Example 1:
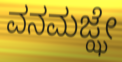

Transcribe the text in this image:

ವನಮಜ್ಝೇ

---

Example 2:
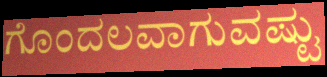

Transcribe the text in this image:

ಗೊಂದಲವಾಗುವಷ್ಟು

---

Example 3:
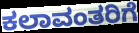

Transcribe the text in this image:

ಕಲಾವಂತರಿಗೆ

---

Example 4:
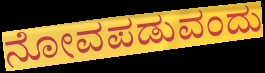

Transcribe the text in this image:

ನೋವಪಡುವಂದು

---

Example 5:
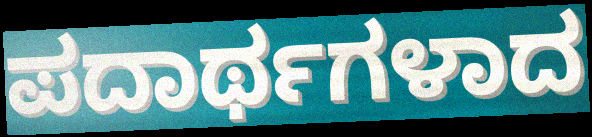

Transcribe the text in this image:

ಪದಾರ್ಥಗಳಾದ